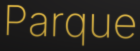
Parque